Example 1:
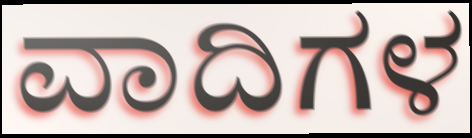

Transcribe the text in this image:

ವಾದಿಗಳ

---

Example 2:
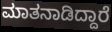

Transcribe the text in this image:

ಮಾತನಾಡಿದ್ದಾರೆ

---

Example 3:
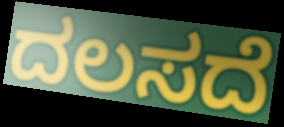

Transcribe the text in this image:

ದಲಸದೆ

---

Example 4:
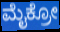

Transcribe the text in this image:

ಮೈಕ್ರೋ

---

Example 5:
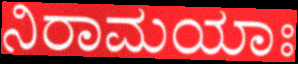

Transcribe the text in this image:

ನಿರಾಮಯಾಃ